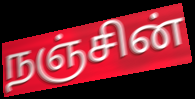
நஞ்சின்